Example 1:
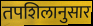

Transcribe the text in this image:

तपशिलानुसार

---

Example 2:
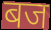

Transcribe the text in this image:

बज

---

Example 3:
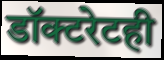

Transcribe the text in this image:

डॉक्‍टरेटही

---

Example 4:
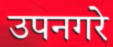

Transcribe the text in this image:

उपनगरे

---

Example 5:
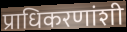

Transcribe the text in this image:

प्राधिकरणांशी